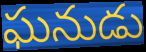
ఘనుడు